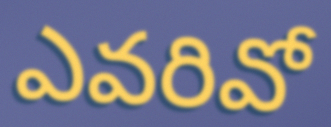
ఎవరివో